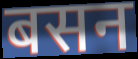
बसन